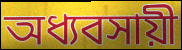
অধ্যবসায়ী